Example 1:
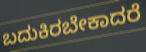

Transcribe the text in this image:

ಬದುಕಿರಬೇಕಾದರೆ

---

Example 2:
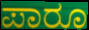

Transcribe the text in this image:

ಪಾರೂ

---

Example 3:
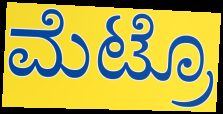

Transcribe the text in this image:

ಮೆಟ್ರೊ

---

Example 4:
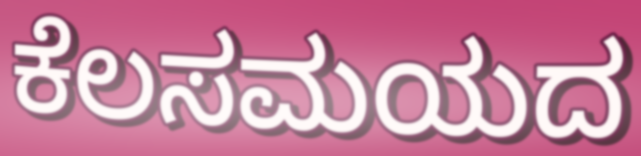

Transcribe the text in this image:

ಕೆಲಸಮಯದ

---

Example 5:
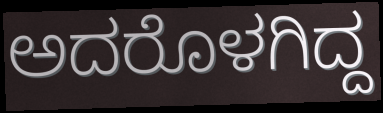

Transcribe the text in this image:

ಅದರೊಳಗಿದ್ದ